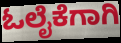
ಓಲೈಕೆಗಾಗಿ